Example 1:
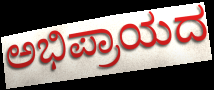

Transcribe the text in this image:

ಅಭಿಪ್ರಾಯದ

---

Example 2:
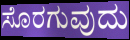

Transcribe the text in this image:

ಸೊರಗುವುದು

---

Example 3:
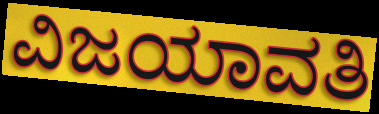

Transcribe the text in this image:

ವಿಜಯಾವತಿ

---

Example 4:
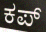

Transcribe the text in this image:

ಕಪ್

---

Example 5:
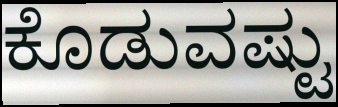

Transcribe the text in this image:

ಕೊಡುವಷ್ಟು